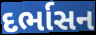
દર્ભાસન